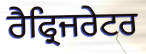
ਰੈਫ੍ਰਿਜਰੇਟਰ